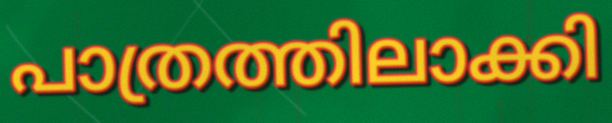
പാത്രത്തിലാക്കി